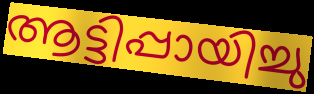
ആട്ടിപ്പായിച്ചു